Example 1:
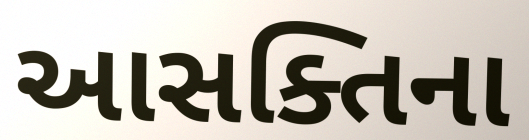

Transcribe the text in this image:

આસક્તિના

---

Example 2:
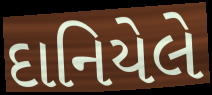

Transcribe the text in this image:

દાનિયેલે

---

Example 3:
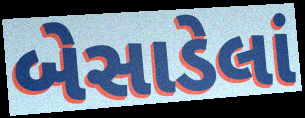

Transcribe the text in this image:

બેસાડેલાં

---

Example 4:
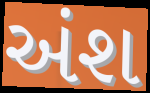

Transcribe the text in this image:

અંશ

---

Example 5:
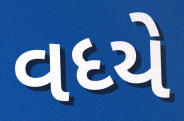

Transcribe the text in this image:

વધ્યે